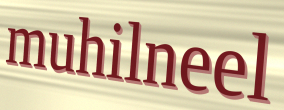
muhilneel